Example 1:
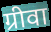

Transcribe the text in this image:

ग्रीवा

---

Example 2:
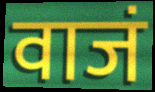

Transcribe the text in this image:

वाजं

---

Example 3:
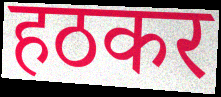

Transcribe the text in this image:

हठकर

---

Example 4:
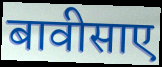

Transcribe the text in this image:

बावीसाए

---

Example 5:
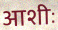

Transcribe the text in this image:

आशीः